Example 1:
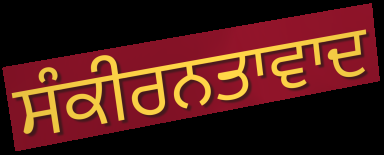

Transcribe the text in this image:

ਸੰਕੀਰਨਤਾਵਾਦ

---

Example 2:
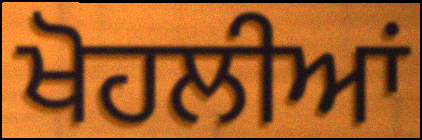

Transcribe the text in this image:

ਖੋਹਲੀਆਂ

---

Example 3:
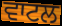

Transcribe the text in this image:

ਵਾਟਲ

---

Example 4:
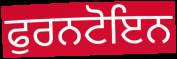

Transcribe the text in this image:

ਫੁਰਨਟੋਇਨ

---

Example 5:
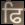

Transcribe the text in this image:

ਫਿ